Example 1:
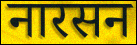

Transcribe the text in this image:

नारसन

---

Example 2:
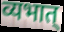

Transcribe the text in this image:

व्यभात्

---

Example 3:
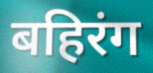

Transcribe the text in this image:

बहिरंग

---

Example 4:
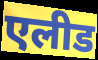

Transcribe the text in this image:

एलीड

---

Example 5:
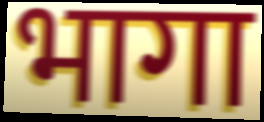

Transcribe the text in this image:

भागा